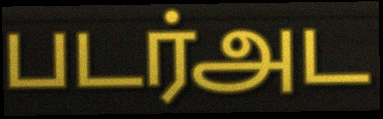
படர்அட